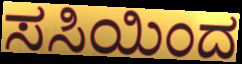
ಸಸಿಯಿಂದ